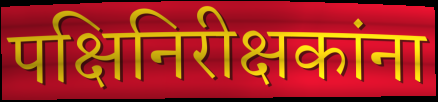
पक्षिनिरीक्षकांना